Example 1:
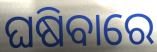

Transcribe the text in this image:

ଘଷିବାରେ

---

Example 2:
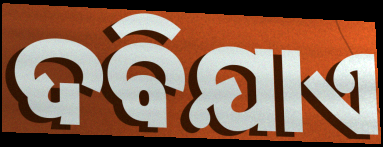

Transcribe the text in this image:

ଦବିଯାଏ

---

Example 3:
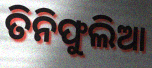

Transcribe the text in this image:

ତିନିଫୁଲିଆ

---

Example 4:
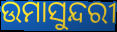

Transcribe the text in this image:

ଉମାସୁନ୍ଦରୀ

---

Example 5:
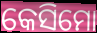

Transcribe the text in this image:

କେସିମୋ